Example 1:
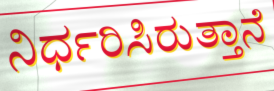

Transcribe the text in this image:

ನಿರ್ಧರಿಸಿರುತ್ತಾನೆ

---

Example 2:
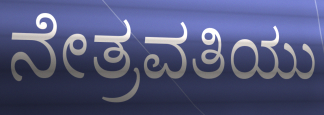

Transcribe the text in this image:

ನೇತ್ರವತಿಯು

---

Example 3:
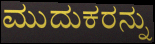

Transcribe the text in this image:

ಮುದುಕರನ್ನು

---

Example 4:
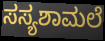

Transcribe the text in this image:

ಸಸ್ಯಶಾಮಲೆ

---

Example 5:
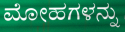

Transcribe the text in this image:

ಮೋಹಗಳನ್ನು